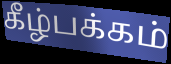
கீழ்பக்கம்